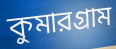
কুমারগ্রাম